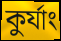
কুর্যাং